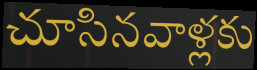
చూసినవాళ్లకు